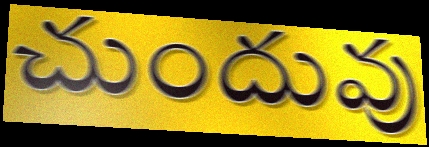
చుందువు